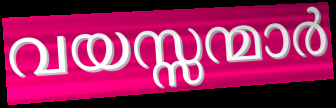
വയസ്സന്മാർ